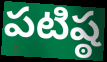
పటిష్ఠ